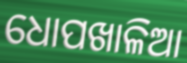
ଧୋପଖାଳିଆ